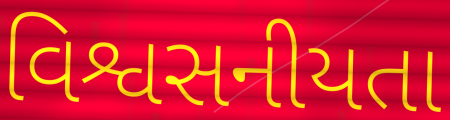
વિશ્વસનીયતા